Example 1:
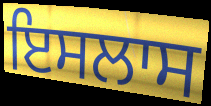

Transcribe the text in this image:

ਇਸਲਾਸ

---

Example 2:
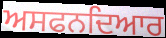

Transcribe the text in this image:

ਅਸਫਨਦਿਆਰ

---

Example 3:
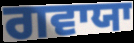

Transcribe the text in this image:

ਗਵਾਯਾ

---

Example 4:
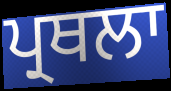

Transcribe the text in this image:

ਪ੍ਰਥਲਾ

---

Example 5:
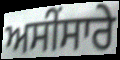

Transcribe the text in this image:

ਅਸੀਂਸਾਰੇ